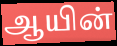
ஆயின்